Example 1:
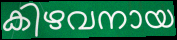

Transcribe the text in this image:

കിഴവനായ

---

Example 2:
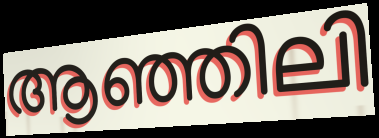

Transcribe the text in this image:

ആഞ്ഞിലി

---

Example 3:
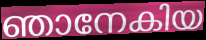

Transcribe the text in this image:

ഞാനേകിയ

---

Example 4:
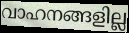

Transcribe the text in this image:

വാഹനങ്ങളില്ല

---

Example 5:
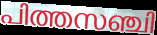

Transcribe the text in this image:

പിത്തസഞ്ചി